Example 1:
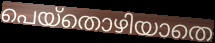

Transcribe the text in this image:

പെയ്തൊഴിയാതെ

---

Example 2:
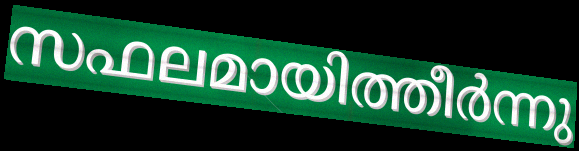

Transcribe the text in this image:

സഫലമായിത്തീർന്നു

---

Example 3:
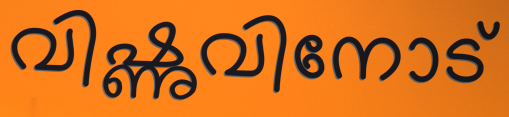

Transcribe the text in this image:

വിഷ്ണുവിനോട്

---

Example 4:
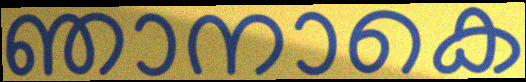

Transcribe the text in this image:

ഞാനാകെ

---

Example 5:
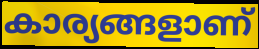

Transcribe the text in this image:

കാര്യങ്ങളാണ്